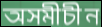
অসমীচীন